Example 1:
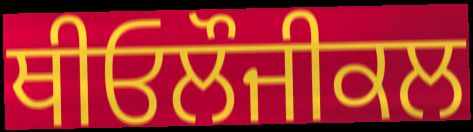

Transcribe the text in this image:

ਥੀਓਲੌਜੀਕਲ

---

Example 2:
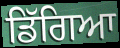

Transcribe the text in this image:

ਡਿੱਗਿਆ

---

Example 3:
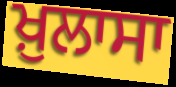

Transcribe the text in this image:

ਖ਼ੁਲਾਸਾ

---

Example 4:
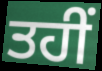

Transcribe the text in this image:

ਤਹੀਂ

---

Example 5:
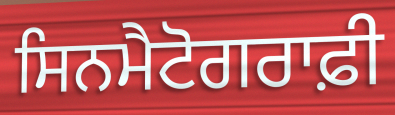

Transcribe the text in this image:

ਸਿਨਮੈਟੋਗਰਾਫ਼ੀ